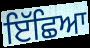
ਇੱਛਿਆ